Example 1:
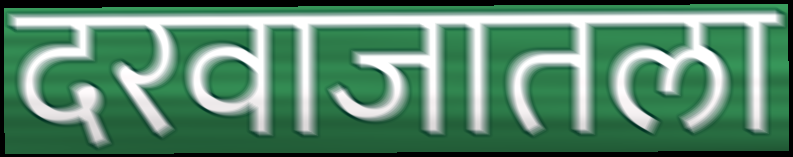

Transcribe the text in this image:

दरवाजातला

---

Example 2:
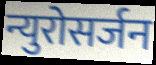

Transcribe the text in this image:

न्युरोसर्जन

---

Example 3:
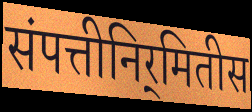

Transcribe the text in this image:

संपत्तीनिर्मितीस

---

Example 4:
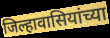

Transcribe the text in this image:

जिल्हावासियांच्या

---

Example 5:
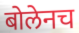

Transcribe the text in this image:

बोलेनच